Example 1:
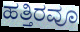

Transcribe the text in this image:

ಹತ್ತಿರವೂ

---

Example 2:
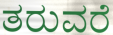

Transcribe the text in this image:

ತರುವರೆ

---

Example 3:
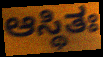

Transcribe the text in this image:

ಆಸ್ಥಿತಃ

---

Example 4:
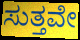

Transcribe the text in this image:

ಸುತ್ತವೇ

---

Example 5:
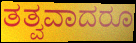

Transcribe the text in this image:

ತತ್ವವಾದರೂ